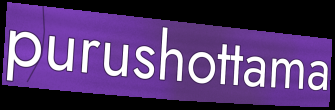
purushottama